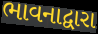
ભાવનાદ્વારા